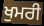
ਖੁਮਰੀ